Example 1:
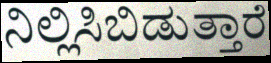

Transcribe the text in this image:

ನಿಲ್ಲಿಸಿಬಿಡುತ್ತಾರೆ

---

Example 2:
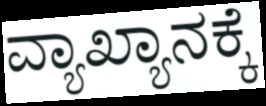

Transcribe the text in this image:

ವ್ಯಾಖ್ಯಾನಕ್ಕೆ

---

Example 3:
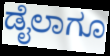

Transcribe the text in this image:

ಡೈಲಾಗೂ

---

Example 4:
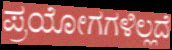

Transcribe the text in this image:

ಪ್ರಯೋಗಗಳಿಲ್ಲದೆ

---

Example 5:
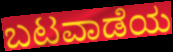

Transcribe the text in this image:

ಬಟವಾಡೆಯ